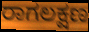
ರಾಗಲಕ್ಷಣ